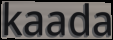
kaada